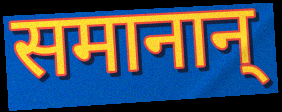
समानान्